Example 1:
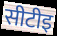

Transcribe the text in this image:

सीटीइ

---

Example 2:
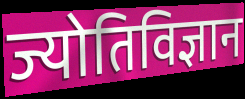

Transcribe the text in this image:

ज्योतिविज्ञान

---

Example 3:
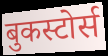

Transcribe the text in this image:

बुकस्टोर्स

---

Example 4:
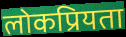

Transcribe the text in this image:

लोकप्रियता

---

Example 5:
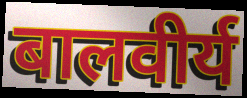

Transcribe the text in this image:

बालवीर्य